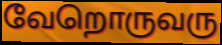
வேறொருவரு